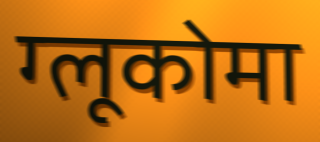
ग्लूकोमा